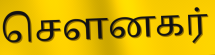
சௌனகர்